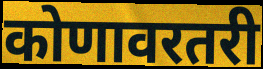
कोणावरतरी